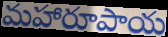
మహారూపాయ